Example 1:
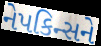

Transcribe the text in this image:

નેપકિન્સને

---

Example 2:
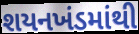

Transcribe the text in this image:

શયનખંડમાંથી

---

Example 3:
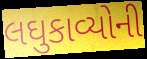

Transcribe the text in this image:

લઘુકાવ્યોની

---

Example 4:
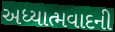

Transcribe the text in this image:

અધ્યાત્મવાદની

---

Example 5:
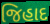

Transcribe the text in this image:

જિહાદ